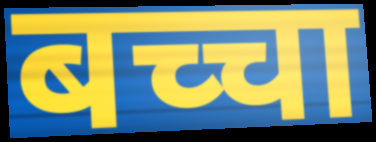
बच्चा